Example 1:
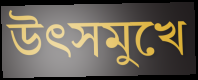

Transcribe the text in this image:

উৎসমুখে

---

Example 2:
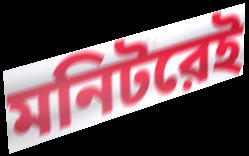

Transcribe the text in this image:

মনিটরেই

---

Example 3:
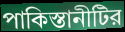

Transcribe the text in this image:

পাকিস্তানীটির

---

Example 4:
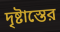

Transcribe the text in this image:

দৃষ্টাস্তের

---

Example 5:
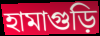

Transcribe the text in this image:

হামাগুড়ি